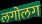
लगोलग